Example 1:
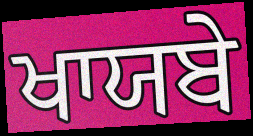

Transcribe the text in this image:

ਖਾਯਬੇ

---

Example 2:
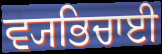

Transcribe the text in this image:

ਵ੍ਯਭਿਚਾਈ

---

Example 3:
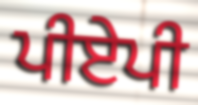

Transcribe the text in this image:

ਪੀਏਪੀ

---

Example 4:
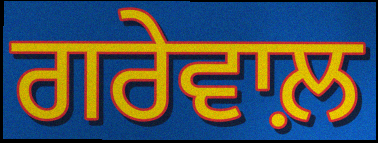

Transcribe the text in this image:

ਗਰੇਵਾਲ਼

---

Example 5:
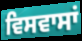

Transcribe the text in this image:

ਵਿਸਵਾਸਾਂ